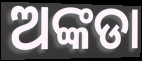
ଅଙ୍କଡା